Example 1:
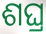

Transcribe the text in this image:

ଶଘ୍ର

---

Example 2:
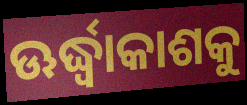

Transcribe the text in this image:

ଊର୍ଦ୍ଧ୍ୱାକାଶକୁ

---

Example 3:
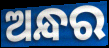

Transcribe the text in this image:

ଅନ୍ଧର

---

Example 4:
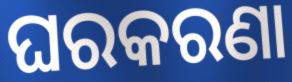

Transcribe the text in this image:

ଘରକରଣା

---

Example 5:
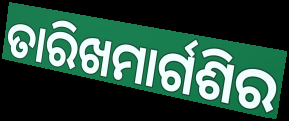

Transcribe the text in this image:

ତାରିଖମାର୍ଗଶିର